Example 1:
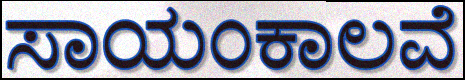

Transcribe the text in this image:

ಸಾಯಂಕಾಲವೆ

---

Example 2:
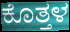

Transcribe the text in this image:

ಕೊತ್ತಳ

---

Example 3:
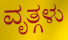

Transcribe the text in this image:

ವೃತ್ಗಳು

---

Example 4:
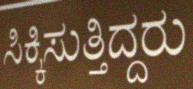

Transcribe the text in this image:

ಸಿಕ್ಕಿಸುತ್ತಿದ್ದರು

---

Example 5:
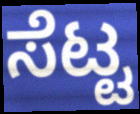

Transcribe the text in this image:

ಸೆಟ್ಟ